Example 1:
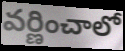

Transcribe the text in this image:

వర్ణించాలో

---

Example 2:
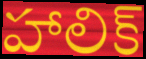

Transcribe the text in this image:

హాలిక్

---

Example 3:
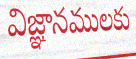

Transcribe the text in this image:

విజ్ఞానములకు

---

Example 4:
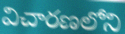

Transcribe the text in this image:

విచారణలోని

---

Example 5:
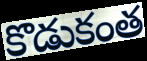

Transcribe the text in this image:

కొడుకంత